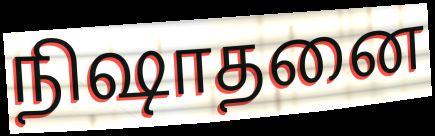
நிஷாதனை